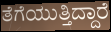
ತೆಗೆಯುತ್ತಿದ್ದಾರೆ